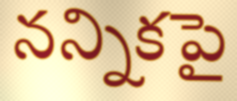
నన్నికపై